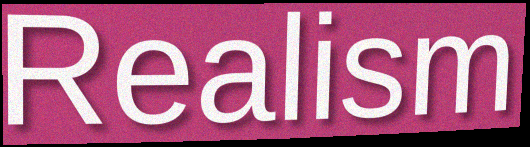
Realism